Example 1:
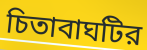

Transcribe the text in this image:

চিতাবাঘটির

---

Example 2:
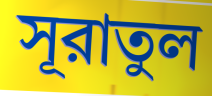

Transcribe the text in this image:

সূরাতুল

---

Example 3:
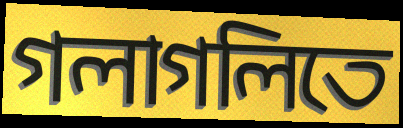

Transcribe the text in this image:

গলাগলিতে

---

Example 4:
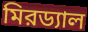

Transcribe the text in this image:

মিরড্যাল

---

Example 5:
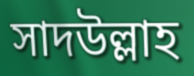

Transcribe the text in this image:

সাদউল্লাহ